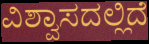
ವಿಶ್ವಾಸದಲ್ಲಿದೆ